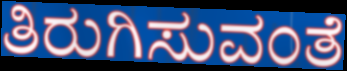
ತಿರುಗಿಸುವಂತೆ